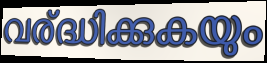
വര്ദ്ധിക്കുകയും